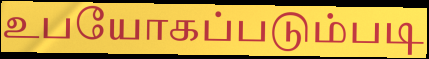
உபயோகப்படும்படி